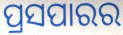
ପ୍ରସପାରର